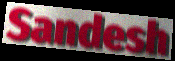
Sandesh